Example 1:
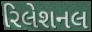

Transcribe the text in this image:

રિલેશનલ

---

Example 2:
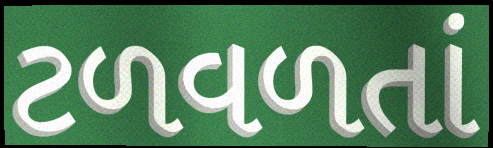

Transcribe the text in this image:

ટળવળતાં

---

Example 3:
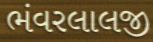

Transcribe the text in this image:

ભંવરલાલજી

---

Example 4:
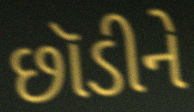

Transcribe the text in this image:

છૉડીને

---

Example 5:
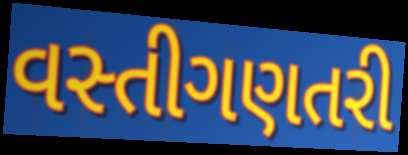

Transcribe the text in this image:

વસ્તીગણતરી